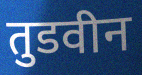
तुडवीन